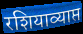
रशियाव्याप्त